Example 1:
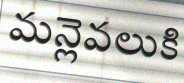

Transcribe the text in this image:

మన్లెవలుకి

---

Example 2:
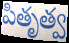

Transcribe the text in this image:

పితృత్వ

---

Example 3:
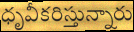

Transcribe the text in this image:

ధృవీకరిస్తున్నారు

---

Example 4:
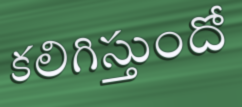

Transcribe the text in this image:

కలిగిస్తుందో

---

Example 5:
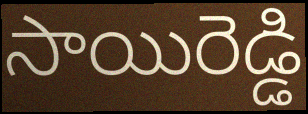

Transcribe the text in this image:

సాయిరెడ్డి